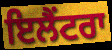
ਇਲੈਂਟਰਾ